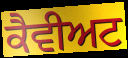
ਕੈਵੀਅਟ